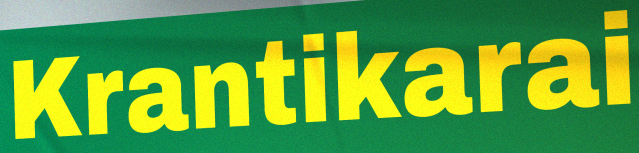
Krantikarai